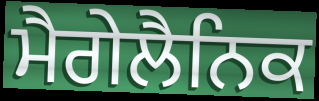
ਮੈਗੇਲੈਨਿਕ